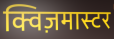
क्विज़मास्टर